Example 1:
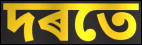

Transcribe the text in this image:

দৰতে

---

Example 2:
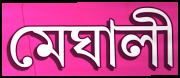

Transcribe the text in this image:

মেঘালী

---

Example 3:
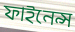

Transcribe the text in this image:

ফাইনেন্স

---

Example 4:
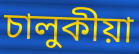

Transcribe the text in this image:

চালুকীয়া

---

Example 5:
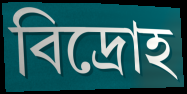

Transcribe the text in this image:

বিদ্ৰোহ